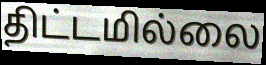
திட்டமில்லை